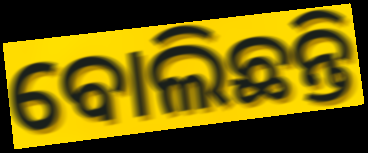
ବୋଲିଛନ୍ତି